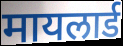
मायलार्ड